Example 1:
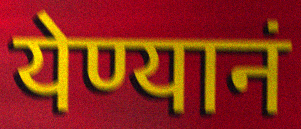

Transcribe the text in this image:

येण्यानं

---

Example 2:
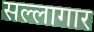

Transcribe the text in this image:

सल्‍लागार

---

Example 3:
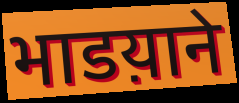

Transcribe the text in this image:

भाडय़ाने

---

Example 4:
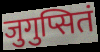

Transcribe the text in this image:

जुगुप्सितं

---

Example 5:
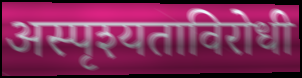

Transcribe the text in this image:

अस्पृश्यताविरोधी